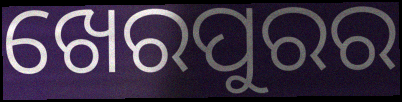
ଖେରପୁରର